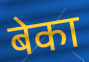
बेका